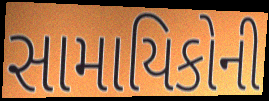
સામાયિકોની